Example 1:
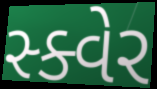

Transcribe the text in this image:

સ્ક્વેર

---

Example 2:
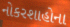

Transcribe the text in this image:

નોકરશાહોના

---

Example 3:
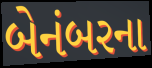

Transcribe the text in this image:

બેનંબરના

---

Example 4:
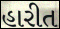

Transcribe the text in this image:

હારીત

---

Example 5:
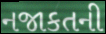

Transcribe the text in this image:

નજાકતની